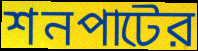
শনপাটের